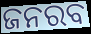
ଜନରବ